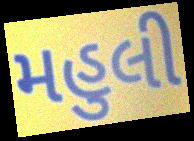
મહુલી